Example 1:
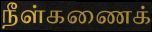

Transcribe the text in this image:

நீள்கணைக்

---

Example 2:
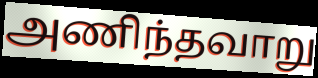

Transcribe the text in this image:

அணிந்தவாறு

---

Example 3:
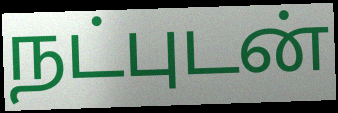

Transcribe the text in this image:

நட்புடன்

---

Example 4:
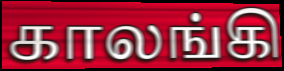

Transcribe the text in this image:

காலங்கி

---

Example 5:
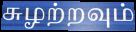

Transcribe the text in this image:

சுழற்றவும்